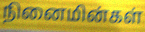
நினைமின்கள்